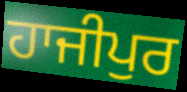
ਹਾਜੀਪੁਰ